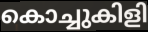
കൊച്ചുകിളി